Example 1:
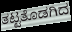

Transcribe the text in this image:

ತಟ್ಟತೊಡಗಿದ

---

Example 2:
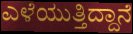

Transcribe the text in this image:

ಎಳೆಯುತ್ತಿದ್ದಾನೆ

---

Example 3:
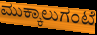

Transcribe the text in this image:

ಮುಕ್ಕಾಲುಗಂಟೆ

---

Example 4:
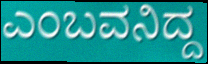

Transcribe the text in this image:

ಎಂಬವನಿದ್ದ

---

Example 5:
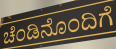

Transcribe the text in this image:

ಚೆಂಡಿನೊಂದಿಗೆ